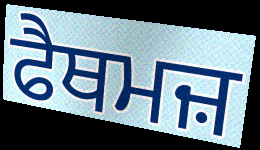
ਫੈਥਮਜ਼